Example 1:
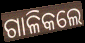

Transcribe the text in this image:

ଗାଳିକଲେ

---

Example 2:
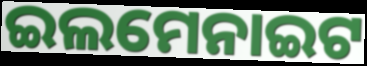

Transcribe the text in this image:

ଇଲମେନାଇଟ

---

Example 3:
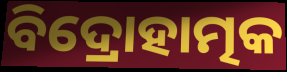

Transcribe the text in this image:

ବିଦ୍ରୋହାତ୍ମକ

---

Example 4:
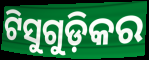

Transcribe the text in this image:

ଟିସୁଗୁଡ଼ିକର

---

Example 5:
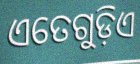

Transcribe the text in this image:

ଏତେଗୁଡ଼ିଏ